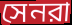
সেনরা